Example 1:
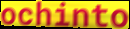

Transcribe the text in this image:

ochinto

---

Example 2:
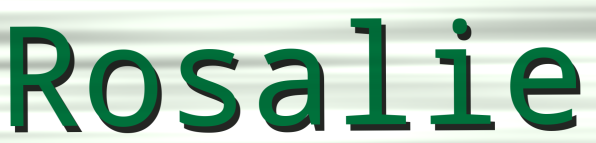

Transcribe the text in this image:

Rosalie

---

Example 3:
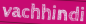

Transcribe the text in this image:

vachhindi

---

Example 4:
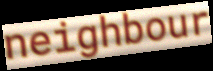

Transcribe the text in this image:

neighbour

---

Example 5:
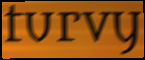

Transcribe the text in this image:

turvy